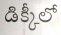
డిక్కీలో